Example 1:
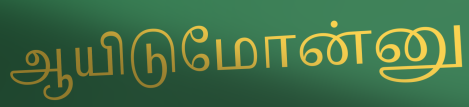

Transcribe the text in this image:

ஆயிடுமோன்னு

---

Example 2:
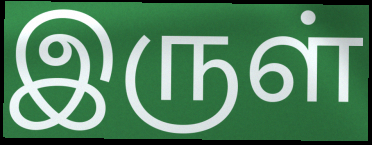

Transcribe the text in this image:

இருள்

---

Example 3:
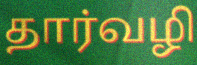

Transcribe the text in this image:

தார்வழி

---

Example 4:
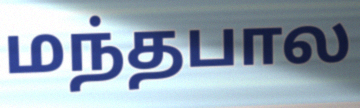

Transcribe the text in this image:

மந்தபால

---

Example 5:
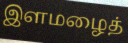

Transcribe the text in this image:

இளமழைத்